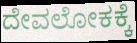
ದೇವಲೋಕಕ್ಕೆ